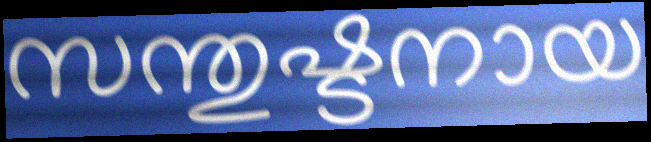
സന്തുഷ്ടനായ